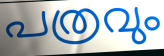
പത്രവും